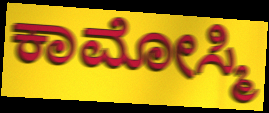
ಕಾಮೋಸ್ಮಿ